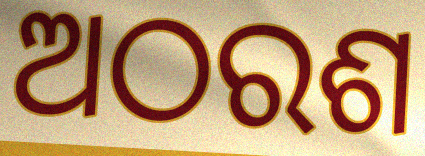
ଅଠରଶ